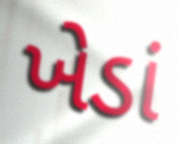
ખેડાં